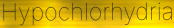
Hypochlorhydria